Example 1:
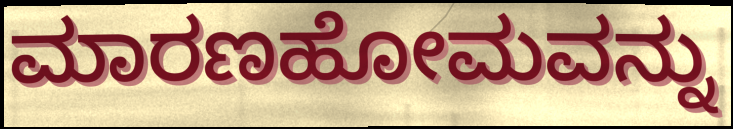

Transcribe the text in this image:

ಮಾರಣಹೋಮವನ್ನು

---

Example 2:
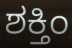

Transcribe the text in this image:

ಶಕ್ತಿಂ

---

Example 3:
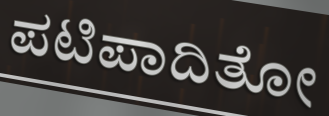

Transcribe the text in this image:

ಪಟಿಪಾದಿತೋ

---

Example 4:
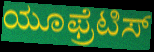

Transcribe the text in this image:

ಯೂಫ್ರೆಟಿಸ್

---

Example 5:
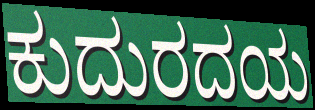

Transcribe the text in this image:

ಕುದುರದಯ